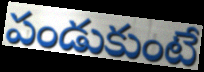
పండుకుంటే